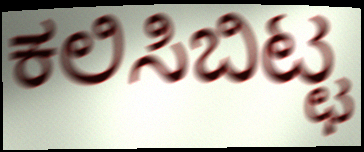
ಕಲಿಸಿಬಿಟ್ಟ